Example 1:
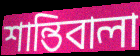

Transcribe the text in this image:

শান্তিবালা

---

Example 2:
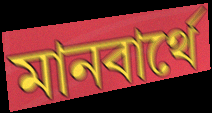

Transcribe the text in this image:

মানবার্থে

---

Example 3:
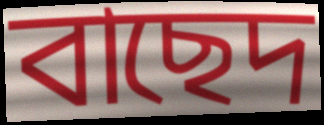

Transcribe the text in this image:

বাছেদ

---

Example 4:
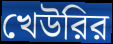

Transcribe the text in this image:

খেউরির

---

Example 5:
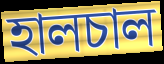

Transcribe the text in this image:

হালচাল